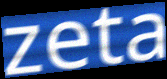
zeta